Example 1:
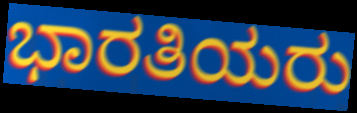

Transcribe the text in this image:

ಭಾರತಿಯರು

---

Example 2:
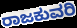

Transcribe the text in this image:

ರಾಜಕುವರಿ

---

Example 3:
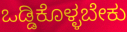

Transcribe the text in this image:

ಒಡ್ಡಿಕೊಳ್ಳಬೇಕು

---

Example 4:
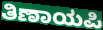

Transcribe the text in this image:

ತಿಣಾಯಪಿ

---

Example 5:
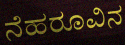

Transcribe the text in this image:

ನೆಹರೂವಿನ